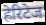
हेरिटेज